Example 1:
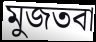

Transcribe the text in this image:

মুজতবা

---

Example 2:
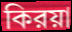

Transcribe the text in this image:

কিরয়া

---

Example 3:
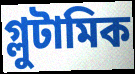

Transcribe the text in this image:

গ্লুটামিক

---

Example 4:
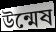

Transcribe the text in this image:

উন্মেষ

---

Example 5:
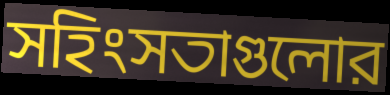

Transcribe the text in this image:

সহিংসতাগুলোর